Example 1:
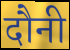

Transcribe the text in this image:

दौनी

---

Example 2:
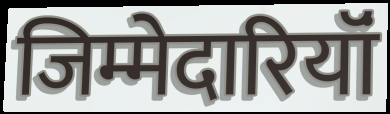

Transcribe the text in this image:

जिम्मेदारियॉं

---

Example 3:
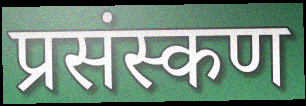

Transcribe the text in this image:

प्रसंस्कण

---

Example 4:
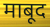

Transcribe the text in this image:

माबूद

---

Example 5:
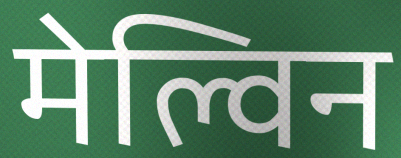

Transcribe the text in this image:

मेल्विन